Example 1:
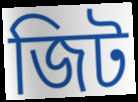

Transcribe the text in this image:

জিট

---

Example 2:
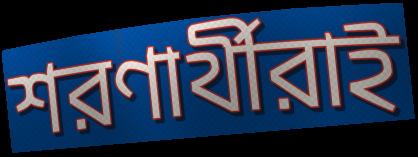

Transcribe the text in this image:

শরণার্থীরাই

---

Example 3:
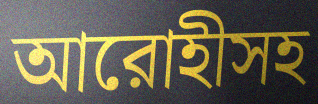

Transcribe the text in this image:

আরোহীসহ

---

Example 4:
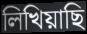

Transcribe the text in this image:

লিখিয়াছি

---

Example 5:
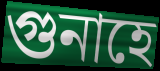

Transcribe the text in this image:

গুনাহে